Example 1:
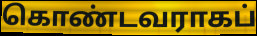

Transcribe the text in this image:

கொண்டவராகப்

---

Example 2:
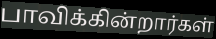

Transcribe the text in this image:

பாவிக்கின்றார்கள்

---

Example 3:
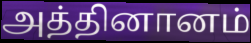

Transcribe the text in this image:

அத்தினானம்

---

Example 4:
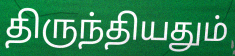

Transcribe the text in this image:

திருந்தியதும்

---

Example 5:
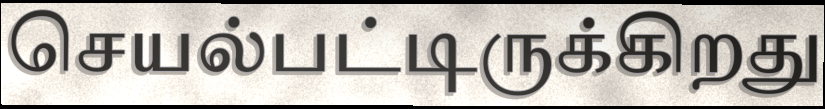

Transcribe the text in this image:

செயல்பட்டிருக்கிறது